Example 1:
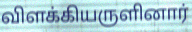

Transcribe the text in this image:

விளக்கியருளினார்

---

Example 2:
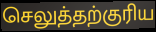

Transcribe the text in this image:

செலுத்தற்குரிய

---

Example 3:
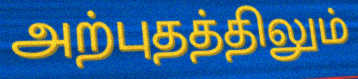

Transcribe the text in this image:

அற்புதத்திலும்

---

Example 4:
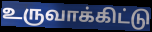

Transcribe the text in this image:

உருவாக்கிட்டு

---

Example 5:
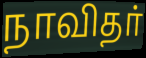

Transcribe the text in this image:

நாவிதர்